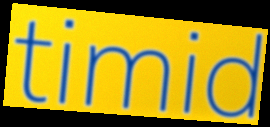
timid